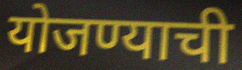
योजण्याची